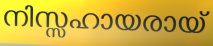
നിസ്സഹായരായ്